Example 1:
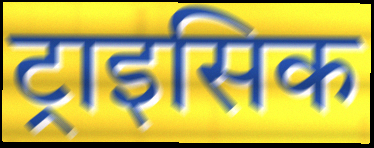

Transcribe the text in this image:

ट्राइसिक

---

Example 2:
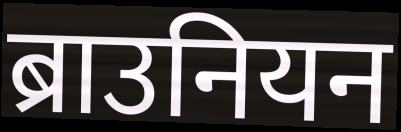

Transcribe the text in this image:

ब्राउनियन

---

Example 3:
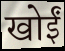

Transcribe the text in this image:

खोईं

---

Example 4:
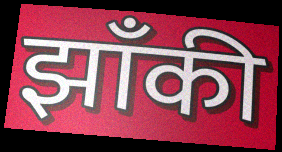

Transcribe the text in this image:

झाँकी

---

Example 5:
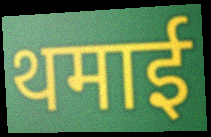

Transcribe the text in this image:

थमाई